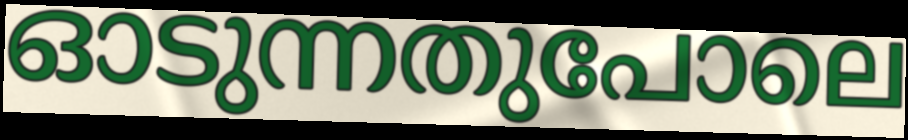
ഓടുന്നതുപോലെ